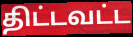
திட்டவட்ட